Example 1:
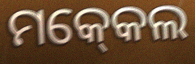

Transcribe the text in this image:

ମକ୍‍କେଲ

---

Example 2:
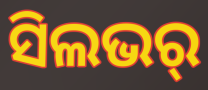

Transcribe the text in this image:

ସିଲଭର୍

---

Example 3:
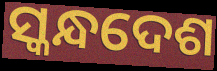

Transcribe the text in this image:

ସ୍କନ୍ଧଦେଶ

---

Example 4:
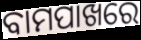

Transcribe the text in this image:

ବାମପାଖରେ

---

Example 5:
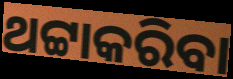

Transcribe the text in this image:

ଥଟ୍ଟାକରିବା